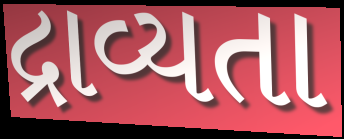
દ્રાવ્યતા